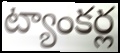
ట్యాంకర్ల